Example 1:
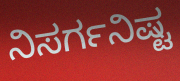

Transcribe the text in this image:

ನಿಸರ್ಗನಿಷ್ಟ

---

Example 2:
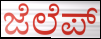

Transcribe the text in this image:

ಜೆಲೆಪ್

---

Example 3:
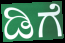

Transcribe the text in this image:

ಡಿಗೆ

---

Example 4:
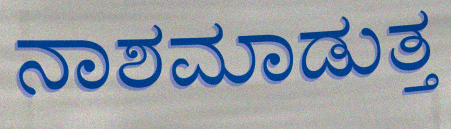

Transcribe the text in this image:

ನಾಶಮಾಡುತ್ತ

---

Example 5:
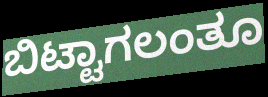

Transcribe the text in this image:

ಬಿಟ್ಟಾಗಲಂತೂ